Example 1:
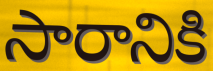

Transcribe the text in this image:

సారానికి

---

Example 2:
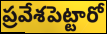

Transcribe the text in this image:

ప్రవేశపెట్టారో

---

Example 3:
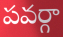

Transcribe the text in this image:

పవర్గా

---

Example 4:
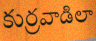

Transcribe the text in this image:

కుర్రవాడిలా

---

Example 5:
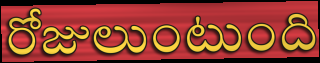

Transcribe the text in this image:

రోజులుంటుంది